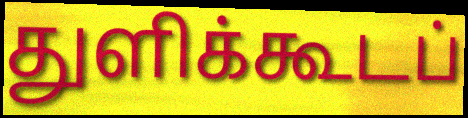
துளிக்கூடப்